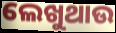
ଲେଖୁଥାଉ